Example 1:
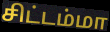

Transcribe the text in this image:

சிட்டம்மா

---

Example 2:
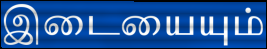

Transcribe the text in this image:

இடையையும்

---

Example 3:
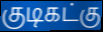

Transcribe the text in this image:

குடிகட்கு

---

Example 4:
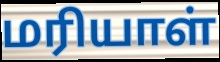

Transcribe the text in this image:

மரியாள்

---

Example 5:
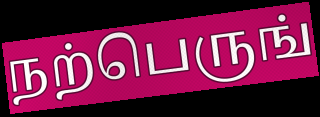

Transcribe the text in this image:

நற்பெருங்